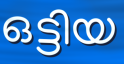
ഒട്ടിയ